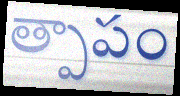
త్పాపం